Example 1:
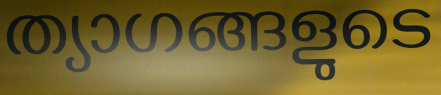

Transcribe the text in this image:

ത്യാഗങ്ങളുടെ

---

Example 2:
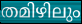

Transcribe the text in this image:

തമിഴിലും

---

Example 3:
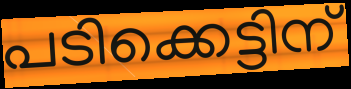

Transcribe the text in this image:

പടിക്കെട്ടിന്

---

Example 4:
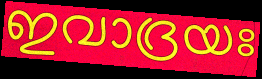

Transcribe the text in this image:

ഇവാദ്രയഃ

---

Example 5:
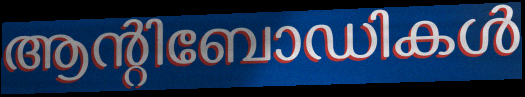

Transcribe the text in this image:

ആന്റിബോഡികൾ